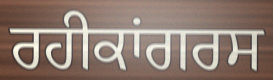
ਰਹੀਕਾਂਗਰਸ